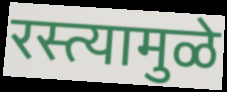
रस्त्यामुळे